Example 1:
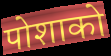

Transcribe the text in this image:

पोशाको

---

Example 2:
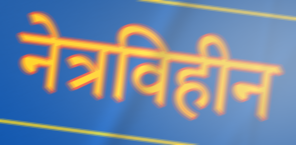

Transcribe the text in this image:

नेत्रविहीन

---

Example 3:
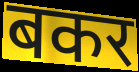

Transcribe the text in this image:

बकर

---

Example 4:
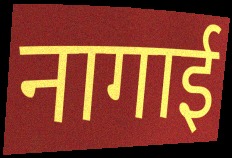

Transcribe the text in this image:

नागाई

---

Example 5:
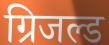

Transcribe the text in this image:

ग्रिजल्ड